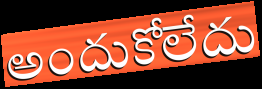
అందుకోలేదు